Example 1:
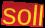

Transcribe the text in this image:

soll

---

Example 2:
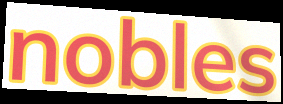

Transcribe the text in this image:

nobles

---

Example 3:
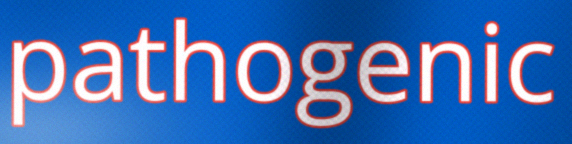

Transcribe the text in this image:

pathogenic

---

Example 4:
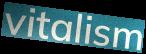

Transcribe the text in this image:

vitalism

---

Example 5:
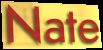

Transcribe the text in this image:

Nate